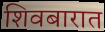
शिवबारात